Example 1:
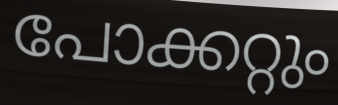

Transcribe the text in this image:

പോക്കറ്റും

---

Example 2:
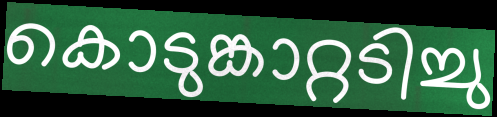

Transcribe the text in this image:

കൊടുങ്കാറ്റടിച്ചു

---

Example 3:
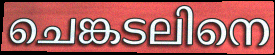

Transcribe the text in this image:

ചെങ്കടലിനെ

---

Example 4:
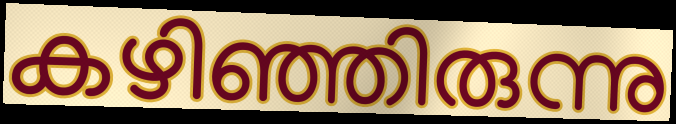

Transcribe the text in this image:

കഴിഞ്ഞിരുന്നു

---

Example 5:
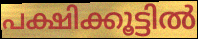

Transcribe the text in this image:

പക്ഷിക്കൂട്ടിൽ